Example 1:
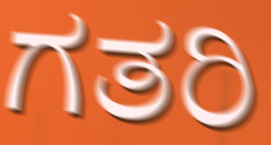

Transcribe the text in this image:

ಗತರಿ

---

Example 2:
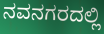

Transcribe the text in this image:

ನವನಗರದಲ್ಲಿ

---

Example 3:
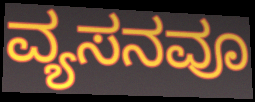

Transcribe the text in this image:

ವ್ಯಸನವೂ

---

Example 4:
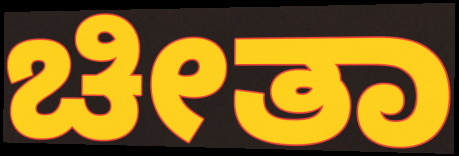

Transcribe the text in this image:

ಚೀತಾ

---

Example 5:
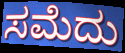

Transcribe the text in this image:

ಸಮೆದು